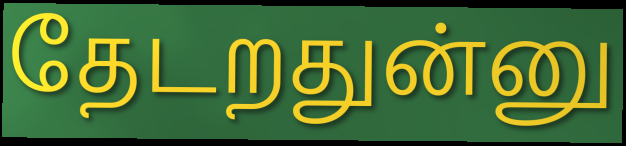
தேடறதுன்னு